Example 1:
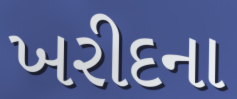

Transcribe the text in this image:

ખરીદના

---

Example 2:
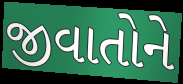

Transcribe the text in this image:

જીવાતોને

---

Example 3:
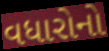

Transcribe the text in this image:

વધારોનો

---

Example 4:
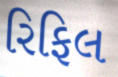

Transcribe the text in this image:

રિફિલ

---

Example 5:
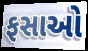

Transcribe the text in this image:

ફસાઓ